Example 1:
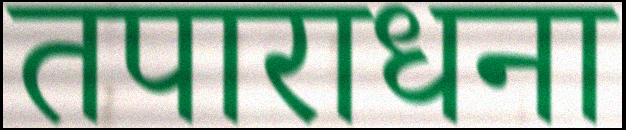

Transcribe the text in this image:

तपाराधना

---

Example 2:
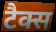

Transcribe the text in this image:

टैक्स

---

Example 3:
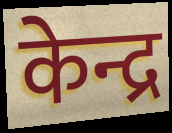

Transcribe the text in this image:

केन्‍द्र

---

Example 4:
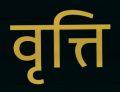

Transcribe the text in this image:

वृत्ति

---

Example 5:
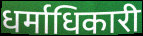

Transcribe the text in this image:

धर्माधिकारी